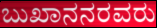
ಬುಖಾನನರವರು